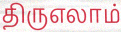
திருஎலாம்